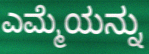
ಎಮ್ಮೆಯನ್ನು